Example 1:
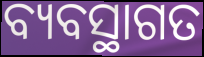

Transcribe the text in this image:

ବ୍ୟବସ୍ଥାଗତ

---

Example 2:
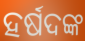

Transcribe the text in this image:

ହର୍ଷଦଙ୍କ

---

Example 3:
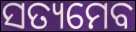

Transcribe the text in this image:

ସତ୍ୟମେବ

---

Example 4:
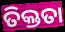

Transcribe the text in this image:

ତିକ୍ତତା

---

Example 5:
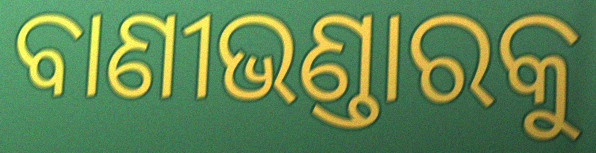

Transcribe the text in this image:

ବାଣୀଭଣ୍ଡାରକୁ